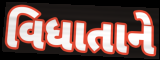
વિધાતાને